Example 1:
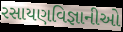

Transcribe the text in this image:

રસાયણવિજ્ઞાનીઓ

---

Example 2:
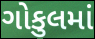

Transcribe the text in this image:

ગોકુલમાં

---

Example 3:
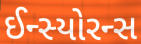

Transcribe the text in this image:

ઈન્સ્યોરન્સ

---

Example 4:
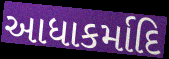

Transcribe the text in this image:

આધાકર્માદિ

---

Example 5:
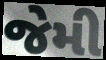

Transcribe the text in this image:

જેમી